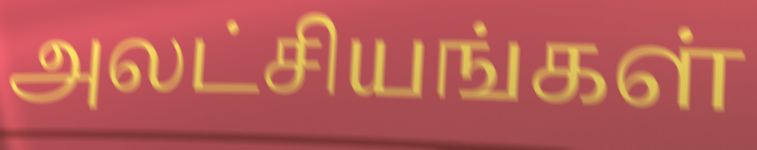
அலட்சியங்கள்